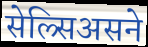
सेल्सिअसने